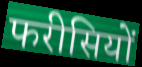
फरीसियों